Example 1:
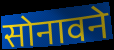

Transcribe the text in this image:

सोनावने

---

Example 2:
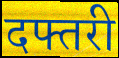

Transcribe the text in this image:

दफ्तरी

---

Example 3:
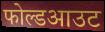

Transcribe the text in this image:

फोल्डआउट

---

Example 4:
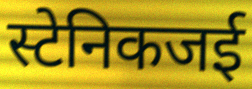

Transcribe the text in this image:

स्टेनिकजई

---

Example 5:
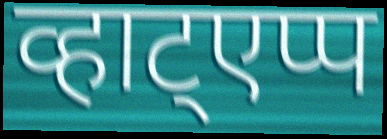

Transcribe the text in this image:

व्हाट्एप्प